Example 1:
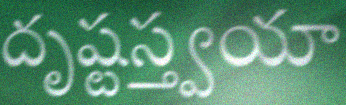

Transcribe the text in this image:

దృష్టస్త్వయా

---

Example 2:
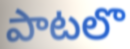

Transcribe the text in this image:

పాటలొ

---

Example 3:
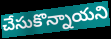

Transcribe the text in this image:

చేసుకొన్నాయని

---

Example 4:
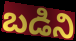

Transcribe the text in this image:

బడిని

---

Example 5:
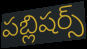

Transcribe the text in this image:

పబ్లిషర్స్